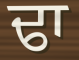
ਢਾ